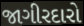
જાગીરદારો